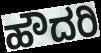
ಹೌದರಿ